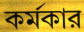
কর্মকার